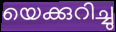
യെക്കുറിച്ചു